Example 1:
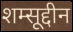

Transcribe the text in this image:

शम्सूद्दीन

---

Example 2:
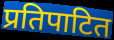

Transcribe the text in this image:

प्रतिपाटित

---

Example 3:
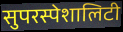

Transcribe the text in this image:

सुपरस्पेशालिटी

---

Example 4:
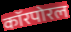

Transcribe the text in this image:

कॉरपोरल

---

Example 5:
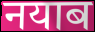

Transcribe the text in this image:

नयाब